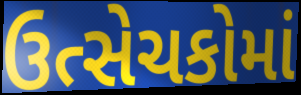
ઉત્સેચકોમાં